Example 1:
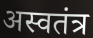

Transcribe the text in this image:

अस्वतंत्र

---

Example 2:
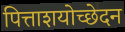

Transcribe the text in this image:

पित्ताशयोच्छेदन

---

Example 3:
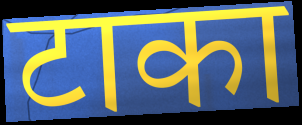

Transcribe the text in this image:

टाका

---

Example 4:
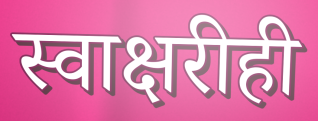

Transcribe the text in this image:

स्वाक्षरीही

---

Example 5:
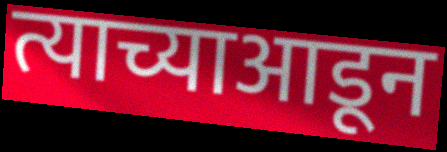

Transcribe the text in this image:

त्याच्याआडून